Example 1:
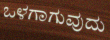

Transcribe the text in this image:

ಒಳಗಾಗುವುದು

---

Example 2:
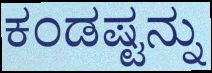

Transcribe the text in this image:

ಕಂಡಷ್ಟನ್ನು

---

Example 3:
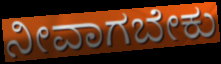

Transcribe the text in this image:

ನೀವಾಗಬೇಕು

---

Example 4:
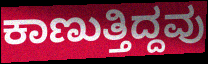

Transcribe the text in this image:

ಕಾಣುತ್ತಿದ್ದವು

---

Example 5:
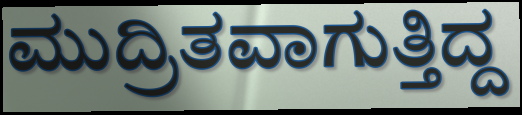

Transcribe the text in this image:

ಮುದ್ರಿತವಾಗುತ್ತಿದ್ದ